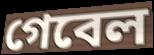
গেবেল